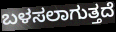
ಬಳಸಲಾಗುತ್ತದೆ